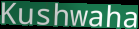
Kushwaha